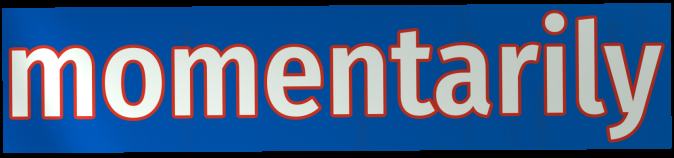
momentarily